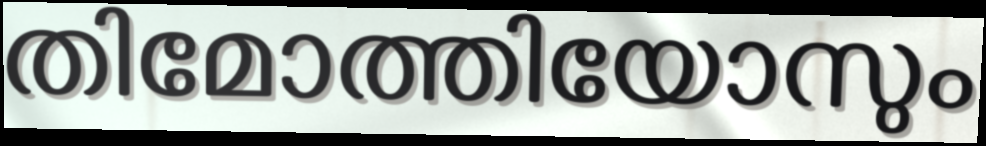
തിമോത്തിയോസും